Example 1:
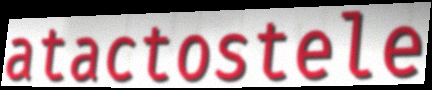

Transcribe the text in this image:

atactostele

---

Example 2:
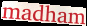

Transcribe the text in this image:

madham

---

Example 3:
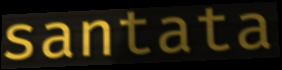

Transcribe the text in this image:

santata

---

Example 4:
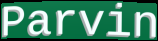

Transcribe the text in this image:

Parvin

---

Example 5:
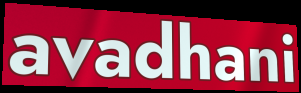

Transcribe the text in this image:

avadhani